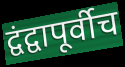
द्वंद्वापूर्वीच